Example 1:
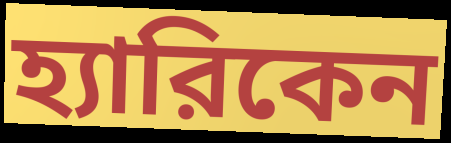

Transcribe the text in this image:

হ্যারিকেন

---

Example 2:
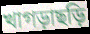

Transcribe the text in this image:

খাগড়াছড়ি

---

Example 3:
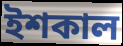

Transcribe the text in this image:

ইশকাল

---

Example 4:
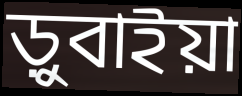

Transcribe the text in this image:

ড়ুবাইয়া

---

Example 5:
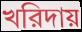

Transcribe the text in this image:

খরিদায়